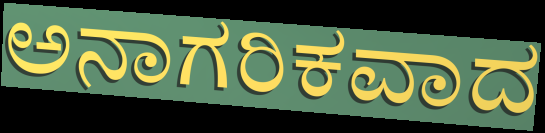
ಅನಾಗರಿಕವಾದ